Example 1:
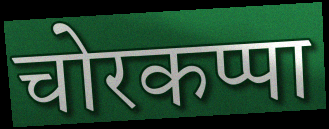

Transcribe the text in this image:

चोरकप्पा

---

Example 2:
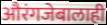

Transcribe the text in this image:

औरंगजेबालाही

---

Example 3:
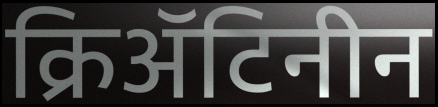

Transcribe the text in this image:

क्रिॲटिनीन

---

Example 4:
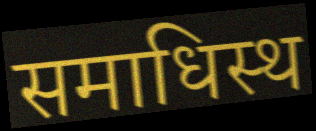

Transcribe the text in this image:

समाधिस्थ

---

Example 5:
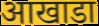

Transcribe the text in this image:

आखाडा